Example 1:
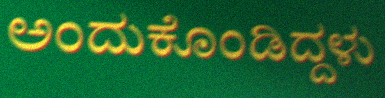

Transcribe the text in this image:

ಅಂದುಕೊಂಡಿದ್ದಳು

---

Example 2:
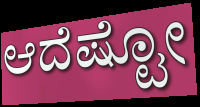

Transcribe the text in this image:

ಆದೆಷ್ಟೋ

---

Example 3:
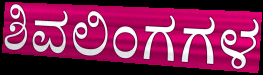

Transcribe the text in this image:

ಶಿವಲಿಂಗಗಳ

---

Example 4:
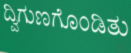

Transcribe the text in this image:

ದ್ವಿಗುಣಗೊಂಡಿತು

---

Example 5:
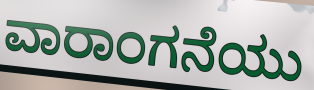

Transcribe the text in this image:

ವಾರಾಂಗನೆಯು